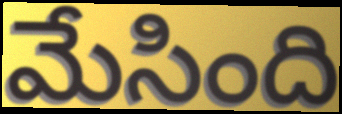
మేసింది